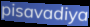
pisavadiya